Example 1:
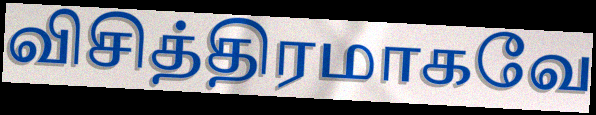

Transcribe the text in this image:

விசித்திரமாகவே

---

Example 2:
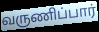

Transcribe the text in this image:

வருணிப்பார்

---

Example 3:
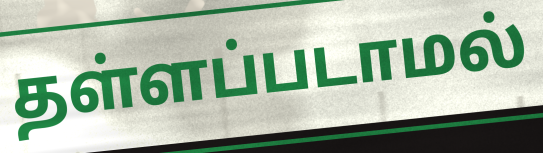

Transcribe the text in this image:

தள்ளப்படாமல்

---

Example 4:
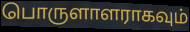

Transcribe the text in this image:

பொருளாளராகவும்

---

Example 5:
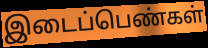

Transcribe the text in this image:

இடைப்பெண்கள்